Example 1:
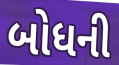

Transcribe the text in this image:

બોધની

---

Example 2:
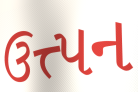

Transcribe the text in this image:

ઉત્ત્પન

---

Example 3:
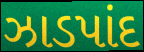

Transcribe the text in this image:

ઝાડપાંદ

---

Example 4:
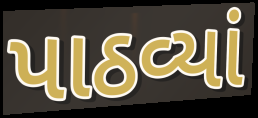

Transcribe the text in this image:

પાઠવ્યાં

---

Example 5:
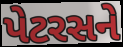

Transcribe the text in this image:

પેટરસને